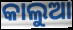
କାଲୁଆ